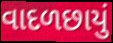
વાદળછાયું